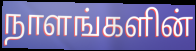
நாளங்களின்